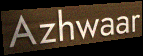
Azhwaar